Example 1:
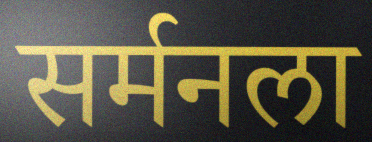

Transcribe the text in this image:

सर्मनला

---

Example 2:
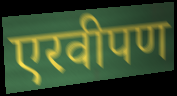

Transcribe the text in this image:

एरवीपण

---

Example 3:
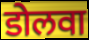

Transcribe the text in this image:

डोलवा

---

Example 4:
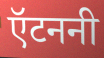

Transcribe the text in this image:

ऍटननी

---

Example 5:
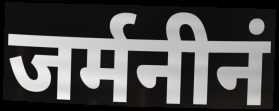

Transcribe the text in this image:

जर्मनीनं